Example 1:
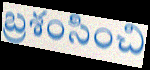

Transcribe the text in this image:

బ్రశంసించి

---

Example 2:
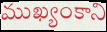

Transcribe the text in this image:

ముఖ్యంకాని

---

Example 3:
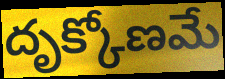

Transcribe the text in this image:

దృక్కోణమే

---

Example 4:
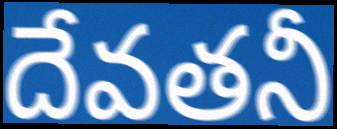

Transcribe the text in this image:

దేవతనీ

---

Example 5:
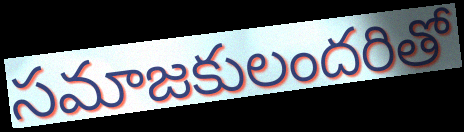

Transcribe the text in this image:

సమాజకులందరితో